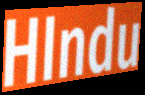
HIndu